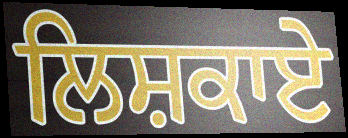
ਲਿਸ਼ਕਾਏ